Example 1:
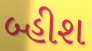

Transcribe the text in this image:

બ્હીશ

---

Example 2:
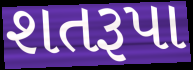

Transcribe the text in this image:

શતરૂપા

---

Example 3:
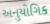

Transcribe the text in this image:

અનુયોગિક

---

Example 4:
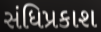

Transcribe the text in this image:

સંધિપ્રકાશ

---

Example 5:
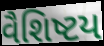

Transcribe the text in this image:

વૈશિષ્ટય